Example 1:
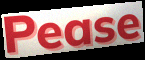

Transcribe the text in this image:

Pease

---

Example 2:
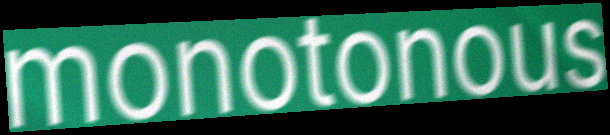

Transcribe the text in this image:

monotonous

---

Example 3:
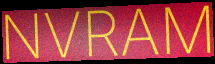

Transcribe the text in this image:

NVRAM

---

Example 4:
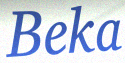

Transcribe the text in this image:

Beka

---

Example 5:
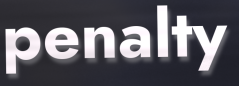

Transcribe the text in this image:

penalty